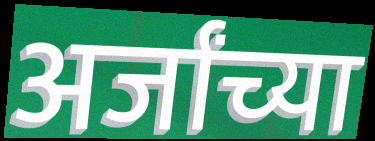
अर्जांच्या